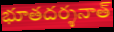
భూతదర్శనాత్